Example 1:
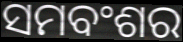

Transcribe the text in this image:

ସମବଂଶର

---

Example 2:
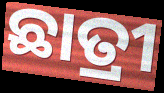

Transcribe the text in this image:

ଛାତ୍ରୀ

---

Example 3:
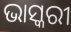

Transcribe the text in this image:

ଭାସ୍କରୀ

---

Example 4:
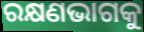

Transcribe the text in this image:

ରକ୍ଷଣଭାଗକୁ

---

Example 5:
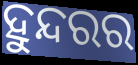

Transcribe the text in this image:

ହୁନ୍ଦରର